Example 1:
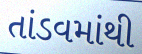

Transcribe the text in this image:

તાંડવમાંથી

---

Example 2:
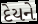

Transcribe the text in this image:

દેયને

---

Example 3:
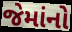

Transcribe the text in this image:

જેમાંનો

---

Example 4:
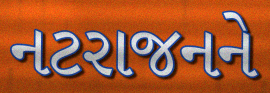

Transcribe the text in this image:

નટરાજનને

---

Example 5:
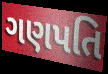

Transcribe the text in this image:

ગણપતિ